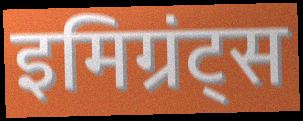
इमिग्रंट्स